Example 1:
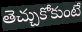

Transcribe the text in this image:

తెచ్చుకోకుంటే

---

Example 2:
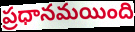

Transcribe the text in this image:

ప్రధానమయింది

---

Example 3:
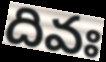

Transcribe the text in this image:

దివః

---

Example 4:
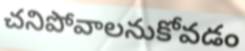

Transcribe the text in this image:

చనిపోవాలనుకోవడం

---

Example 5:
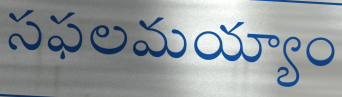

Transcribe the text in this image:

సఫలమయ్యాం